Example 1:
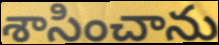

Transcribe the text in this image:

శాసించాను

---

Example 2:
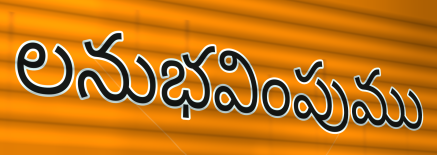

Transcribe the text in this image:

లనుభవింపుము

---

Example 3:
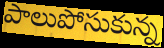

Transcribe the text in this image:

పాలుపోసుకున్న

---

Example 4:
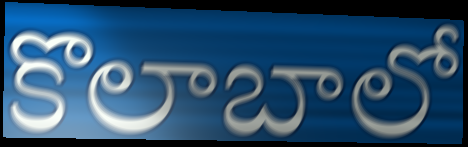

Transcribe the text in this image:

కొలాబాలో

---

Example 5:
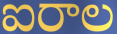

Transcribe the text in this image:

ఐరాల